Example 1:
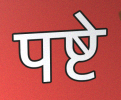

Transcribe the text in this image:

पष्टे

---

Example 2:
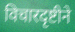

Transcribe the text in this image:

विचारदृष्टीने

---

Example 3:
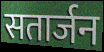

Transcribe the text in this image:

सतार्जन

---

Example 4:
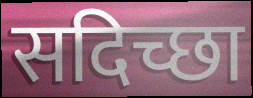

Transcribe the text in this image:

सदिच्छा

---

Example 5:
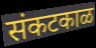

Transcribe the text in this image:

संकटकाळ